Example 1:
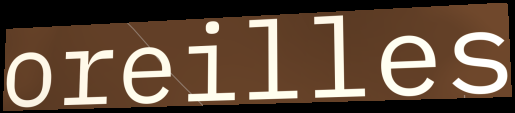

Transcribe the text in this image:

oreilles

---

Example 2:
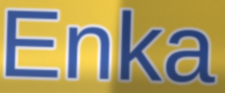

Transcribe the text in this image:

Enka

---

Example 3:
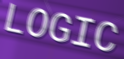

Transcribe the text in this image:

LOGIC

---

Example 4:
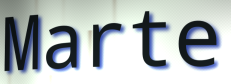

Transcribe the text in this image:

Marte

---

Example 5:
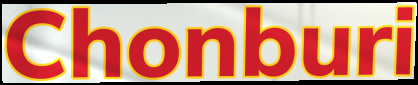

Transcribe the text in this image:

Chonburi